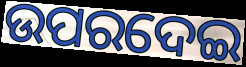
ଉପରଦେଇ